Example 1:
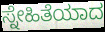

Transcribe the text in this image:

ಸ್ನೇಹಿತೆಯಾದ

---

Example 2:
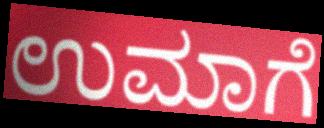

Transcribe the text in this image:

ಉಮಾಗೆ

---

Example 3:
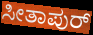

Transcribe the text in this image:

ಸೀತಾಪುರ್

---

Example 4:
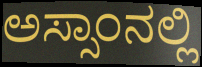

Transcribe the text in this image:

ಅಸ್ಸಾಂನಲ್ಲಿ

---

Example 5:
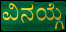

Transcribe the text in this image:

ವಿನಯ್ಗೆ